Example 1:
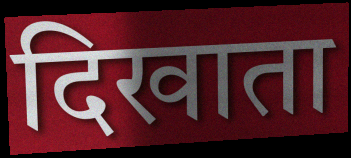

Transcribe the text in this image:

दिखाता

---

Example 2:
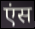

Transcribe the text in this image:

एंस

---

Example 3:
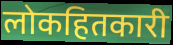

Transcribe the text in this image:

लोकहितकारी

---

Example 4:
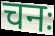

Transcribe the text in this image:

चनः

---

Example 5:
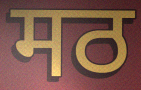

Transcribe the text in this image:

मठ